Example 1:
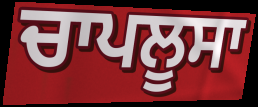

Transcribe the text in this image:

ਚਾਪਲੂਸਾ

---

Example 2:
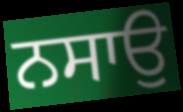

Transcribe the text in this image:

ਨਸਾਉ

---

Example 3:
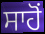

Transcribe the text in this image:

ਸਾਹੋਂ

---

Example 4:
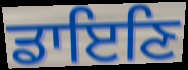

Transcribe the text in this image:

ਡਾਇਣਿ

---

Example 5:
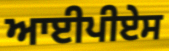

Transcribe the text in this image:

ਆਈਪੀਏਸ